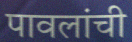
पावलांची